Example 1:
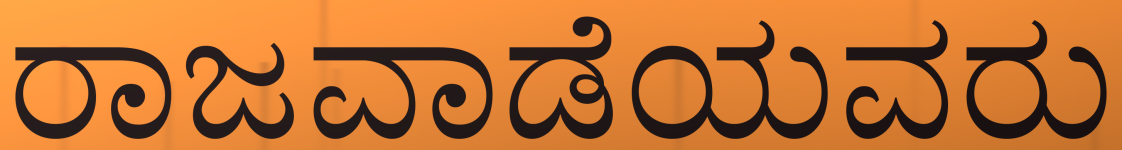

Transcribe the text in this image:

ರಾಜವಾಡೆಯವರು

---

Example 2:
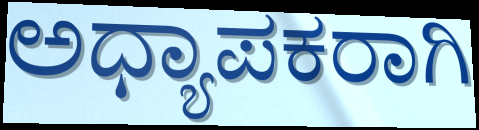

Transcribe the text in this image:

ಅಧ್ಯಾಪಕರಾಗಿ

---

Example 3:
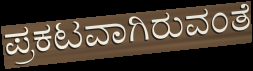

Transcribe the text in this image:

ಪ್ರಕಟವಾಗಿರುವಂತೆ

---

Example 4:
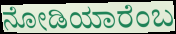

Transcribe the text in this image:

ನೋಡಿಯಾರೆಂಬ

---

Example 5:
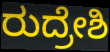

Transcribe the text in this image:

ರುದ್ರೇಶಿ